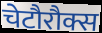
चेटौरौक्स